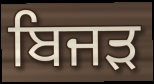
ਬਿਜੜ